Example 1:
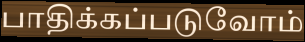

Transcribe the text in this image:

பாதிக்கப்படுவோம்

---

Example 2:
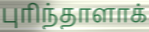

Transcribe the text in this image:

புரிந்தாளாக்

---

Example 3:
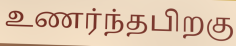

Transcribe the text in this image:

உணர்ந்தபிறகு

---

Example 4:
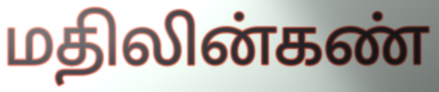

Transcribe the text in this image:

மதிலின்கண்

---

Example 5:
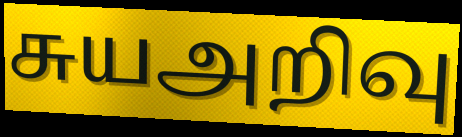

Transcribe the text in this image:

சுயஅறிவு